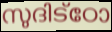
സുദിട്ഠോ